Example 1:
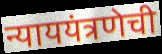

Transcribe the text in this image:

न्याययंत्रणेची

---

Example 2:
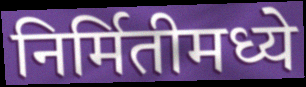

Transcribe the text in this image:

निर्मितीमध्ये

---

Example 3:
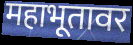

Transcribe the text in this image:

महाभूतावर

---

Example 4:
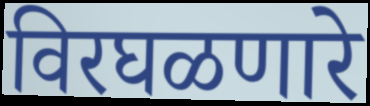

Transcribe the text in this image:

विरघळणारे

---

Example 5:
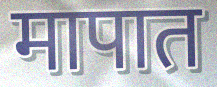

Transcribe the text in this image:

मापात